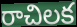
రాచిలక